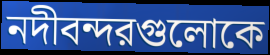
নদীবন্দরগুলোকে